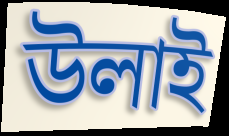
উলাই